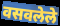
वसवलेले